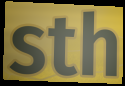
sth